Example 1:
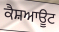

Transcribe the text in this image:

ਕੈਸ਼ਆਊਟ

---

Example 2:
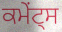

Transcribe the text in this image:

ਕਮੇਂਟ੍ਸ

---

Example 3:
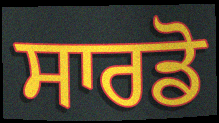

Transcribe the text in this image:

ਸਾਰਡੋ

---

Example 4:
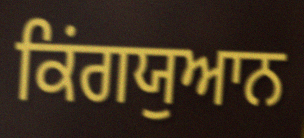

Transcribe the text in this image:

ਕਿਂਗਯੁਆਨ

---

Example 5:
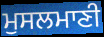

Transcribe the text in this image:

ਮੁਸਲਮਾਣੀ